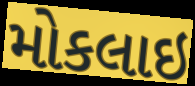
મોકલાઇ